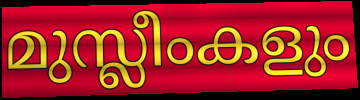
മുസ്ലീംകളും